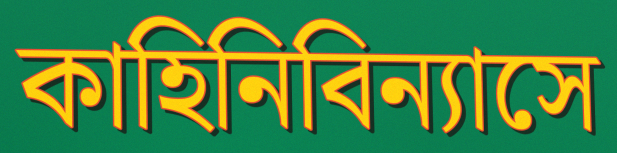
কাহিনিবিন্যাসে